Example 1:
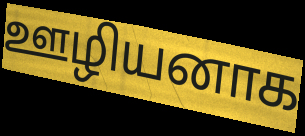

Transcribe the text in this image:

ஊழியனாக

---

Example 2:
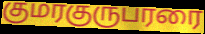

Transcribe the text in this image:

குமரகுருபரரை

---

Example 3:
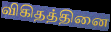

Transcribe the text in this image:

விகிதத்தினை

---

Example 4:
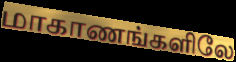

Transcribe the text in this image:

மாகாணங்களிலே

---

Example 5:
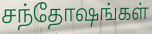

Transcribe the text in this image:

சந்தோஷங்கள்